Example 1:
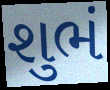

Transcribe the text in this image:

શુભં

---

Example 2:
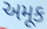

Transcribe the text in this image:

અમૂક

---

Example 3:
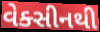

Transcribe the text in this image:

વેક્સીનથી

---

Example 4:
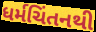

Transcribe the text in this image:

ધર્મચિંતનથી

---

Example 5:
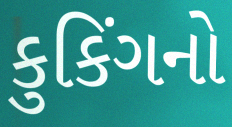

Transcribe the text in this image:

કુકિંગનો